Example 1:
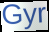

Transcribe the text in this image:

Gyr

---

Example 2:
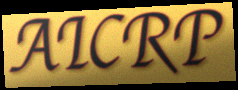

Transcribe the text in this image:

AICRP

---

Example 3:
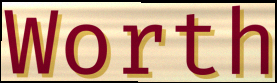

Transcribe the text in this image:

Worth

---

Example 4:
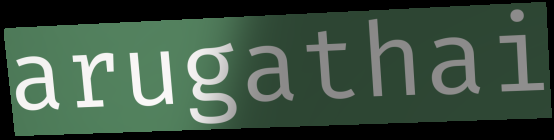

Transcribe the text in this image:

arugathai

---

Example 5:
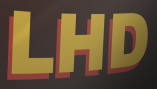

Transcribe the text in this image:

LHD